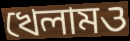
খেলামও